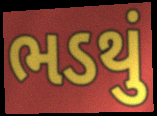
ભડથું